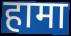
हामा